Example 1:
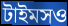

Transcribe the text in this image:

টাইমসও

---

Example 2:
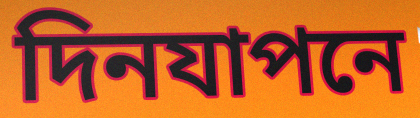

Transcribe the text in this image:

দিনযাপনে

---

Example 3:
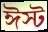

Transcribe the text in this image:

ঈস্ট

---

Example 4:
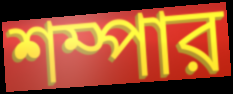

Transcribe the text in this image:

শম্পার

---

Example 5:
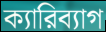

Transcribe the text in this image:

ক্যারিব্যাগ